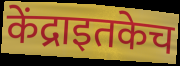
केंद्राइतकेच